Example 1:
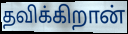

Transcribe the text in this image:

தவிக்கிறான்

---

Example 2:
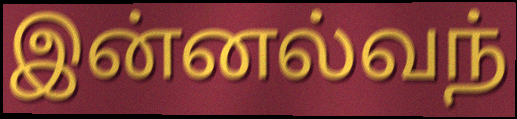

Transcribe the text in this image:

இன்னல்வந்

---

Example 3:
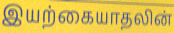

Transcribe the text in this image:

இயற்கையாதலின்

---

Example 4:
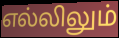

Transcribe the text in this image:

எல்லிலும்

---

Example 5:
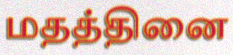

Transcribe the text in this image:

மதத்தினை